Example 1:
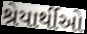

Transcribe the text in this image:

શ્રેયાર્થીઓ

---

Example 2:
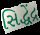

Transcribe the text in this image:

સિદ્ધેંદ્ર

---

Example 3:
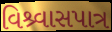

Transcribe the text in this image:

વિશ્ર્વાસપાત્ર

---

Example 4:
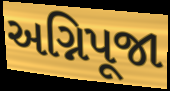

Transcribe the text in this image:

અગ્નિપૂજા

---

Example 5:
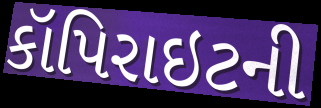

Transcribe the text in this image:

કૉપિરાઇટની